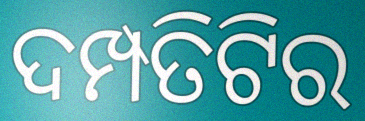
ଦମ୍ପତିଟିର